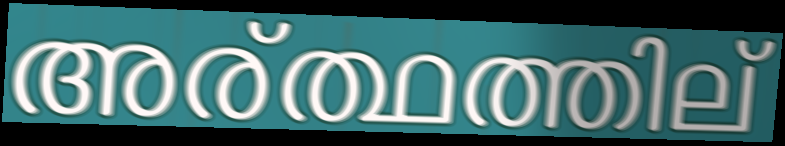
അര്ത്ഥത്തില്